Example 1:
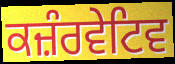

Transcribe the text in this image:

ਕਜ਼ੰਰਵੇਟਿਵ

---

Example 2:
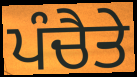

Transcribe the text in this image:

ਪੰਚੈਤੇ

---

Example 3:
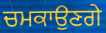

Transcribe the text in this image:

ਚਮਕਾਉਣਗੇ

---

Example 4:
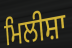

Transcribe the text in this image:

ਮਿਲੀਸ਼ਾ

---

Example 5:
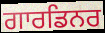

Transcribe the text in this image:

ਗਾਰਡਿਨਰ